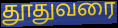
தூதுவரை